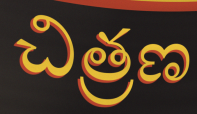
చిత్రణ